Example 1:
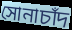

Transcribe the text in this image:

সোনাচাঁদ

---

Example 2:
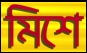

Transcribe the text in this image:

মিশে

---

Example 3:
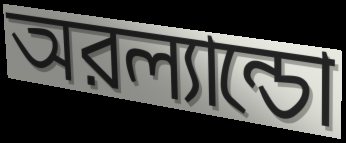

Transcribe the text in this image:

অরল্যান্ডো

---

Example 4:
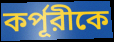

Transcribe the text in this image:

কর্পূরীকে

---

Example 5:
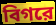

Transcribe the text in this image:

বিগরে